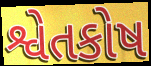
શ્વેતકોષ